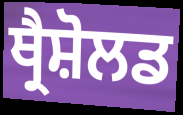
ਥ੍ਰੈਸ਼ੋਲਡ